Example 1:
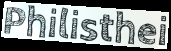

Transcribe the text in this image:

Philisthei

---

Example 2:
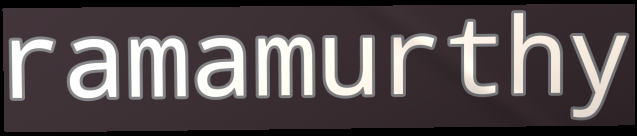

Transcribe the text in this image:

ramamurthy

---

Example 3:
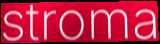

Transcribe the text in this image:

stroma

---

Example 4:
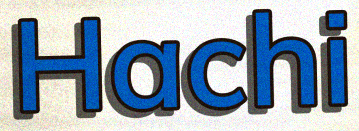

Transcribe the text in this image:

Hachi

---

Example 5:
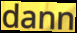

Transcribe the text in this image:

dann